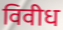
विवीध